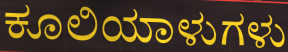
ಕೂಲಿಯಾಳುಗಳು